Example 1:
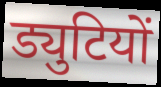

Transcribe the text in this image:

ड्युटियों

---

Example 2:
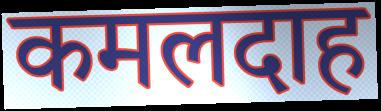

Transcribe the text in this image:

कमलदाह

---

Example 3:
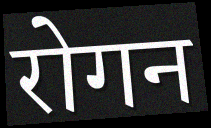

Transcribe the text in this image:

रोगन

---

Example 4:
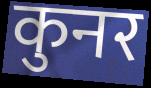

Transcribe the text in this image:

कुनर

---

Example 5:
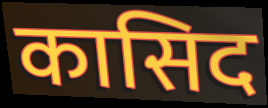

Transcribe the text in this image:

कासिद